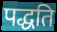
पद्धति